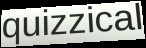
quizzical